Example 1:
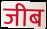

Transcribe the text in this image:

जीब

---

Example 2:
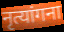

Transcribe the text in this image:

नृत्यांगना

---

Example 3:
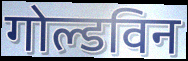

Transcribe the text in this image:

गोल्डविन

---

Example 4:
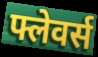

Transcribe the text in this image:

फ्लेवर्स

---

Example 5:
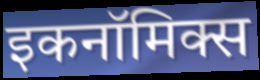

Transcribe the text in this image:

इकनॉमिक्स